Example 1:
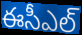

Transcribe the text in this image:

ఈసీఎల్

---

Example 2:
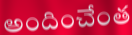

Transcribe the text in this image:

అందించేంత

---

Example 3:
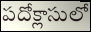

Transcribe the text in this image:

పదోక్లాసులో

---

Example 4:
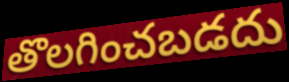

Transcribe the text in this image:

తొలగించబడదు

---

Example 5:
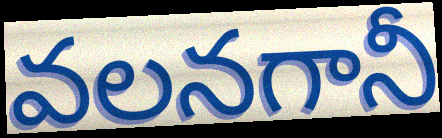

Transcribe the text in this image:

వలనగానీ